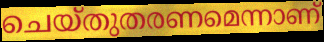
ചെയ്തുതരണമെന്നാണ്